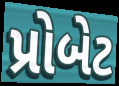
પ્રોબેટ